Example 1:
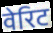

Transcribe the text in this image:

वेरिट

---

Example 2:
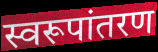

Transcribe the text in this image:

स्वरूपांतरण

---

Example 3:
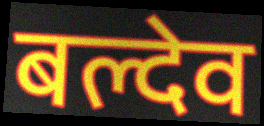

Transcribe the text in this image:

बल्देव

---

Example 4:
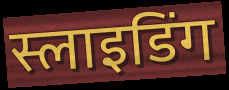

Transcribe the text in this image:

स्लाइडिंग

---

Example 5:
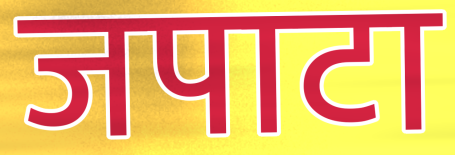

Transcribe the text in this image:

जपाटा